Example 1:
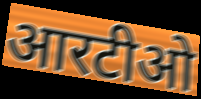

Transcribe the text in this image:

आरटीओ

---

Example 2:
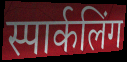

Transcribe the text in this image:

स्पार्कलिंग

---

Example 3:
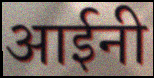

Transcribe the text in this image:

आईनी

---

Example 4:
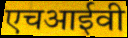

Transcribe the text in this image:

एचआईवी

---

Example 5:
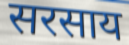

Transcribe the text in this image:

सरसाय